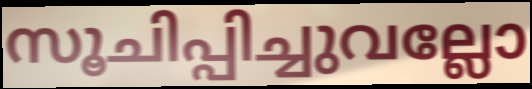
സൂചിപ്പിച്ചുവല്ലോ